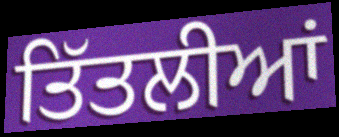
ਤਿੱਤਲੀਆਂ